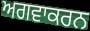
ਅਗਵਾਕਰਨ